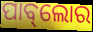
ପାବ୍‌ଲୋର